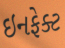
ઇનફેક્ટ